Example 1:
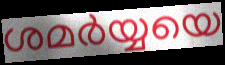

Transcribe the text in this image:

ശമർയ്യയെ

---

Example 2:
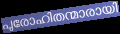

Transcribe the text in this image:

പുരോഹിതന്മാരായി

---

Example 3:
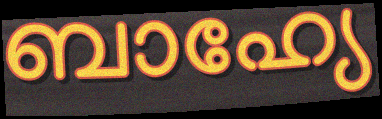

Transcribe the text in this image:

ബാഹ്യേ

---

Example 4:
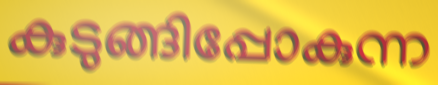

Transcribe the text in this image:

കുടുങ്ങിപ്പോകുന്ന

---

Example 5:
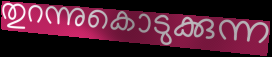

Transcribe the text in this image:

തുറന്നുകൊടുക്കുന്ന